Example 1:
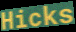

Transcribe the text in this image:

Hicks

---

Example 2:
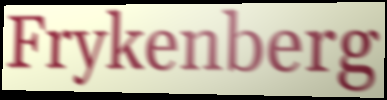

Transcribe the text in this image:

Frykenberg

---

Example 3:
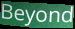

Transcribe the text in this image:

Beyond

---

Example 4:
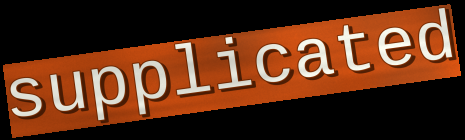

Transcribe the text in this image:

supplicated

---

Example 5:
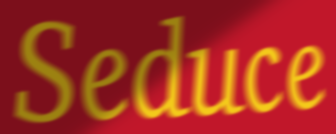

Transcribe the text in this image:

Seduce